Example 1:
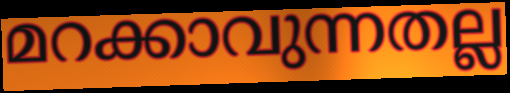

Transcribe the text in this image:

മറക്കാവുന്നതല്ല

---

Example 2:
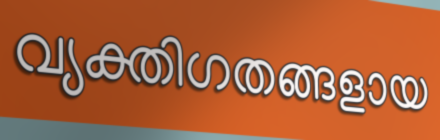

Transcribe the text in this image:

വ്യക്തിഗതങ്ങളായ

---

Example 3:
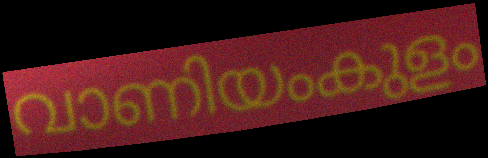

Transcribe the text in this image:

വാണിയംകുളം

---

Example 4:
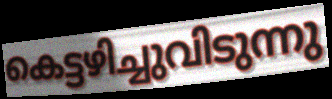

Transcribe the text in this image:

കെട്ടഴിച്ചുവിടുന്നു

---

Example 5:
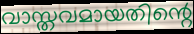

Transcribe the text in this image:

വാസ്തവമായതിന്റെ